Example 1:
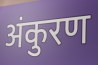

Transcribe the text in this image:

अंकुरण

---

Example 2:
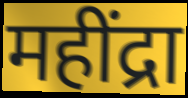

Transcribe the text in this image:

महींद्रा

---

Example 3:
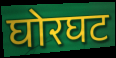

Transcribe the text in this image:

घोरघट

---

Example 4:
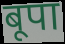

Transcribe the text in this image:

बूपा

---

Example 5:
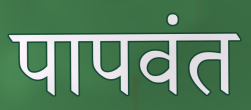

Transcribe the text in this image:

पापवंत